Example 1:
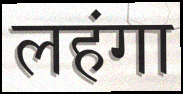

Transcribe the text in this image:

लहंगा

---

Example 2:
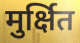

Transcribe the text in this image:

मुर्क्षित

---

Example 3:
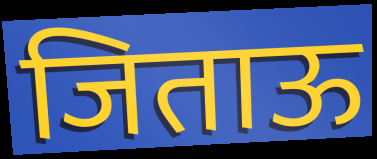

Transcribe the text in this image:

जिताऊ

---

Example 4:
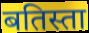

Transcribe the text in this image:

बतिस्ता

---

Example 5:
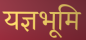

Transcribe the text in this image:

यज्ञभूमि